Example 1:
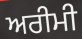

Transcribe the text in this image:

ਅਰੀਮੀ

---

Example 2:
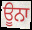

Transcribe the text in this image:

ਊਨਾ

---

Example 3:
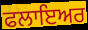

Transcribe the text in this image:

ਫਲਾਇਅਰ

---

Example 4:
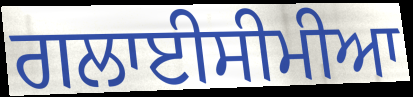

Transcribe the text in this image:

ਗਲਾਈਸੀਮੀਆ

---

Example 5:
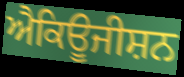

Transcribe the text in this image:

ਐਕਿਊਜੀਸ਼ਨ